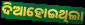
ଦିଆହୋଇଥିଲା